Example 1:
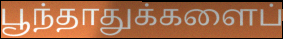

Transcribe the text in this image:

பூந்தாதுக்களைப்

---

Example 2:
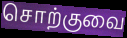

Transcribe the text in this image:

சொற்குவை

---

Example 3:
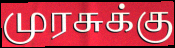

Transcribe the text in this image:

முரசுக்கு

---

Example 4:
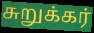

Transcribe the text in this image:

சுறுக்கர்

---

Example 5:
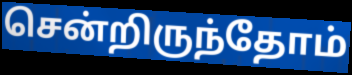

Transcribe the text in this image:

சென்றிருந்தோம்